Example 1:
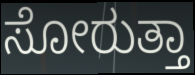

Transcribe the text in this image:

ಸೋರುತ್ತಾ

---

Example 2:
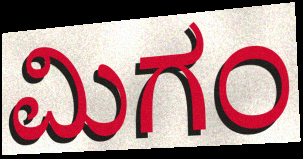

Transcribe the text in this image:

ಮಿಗಂ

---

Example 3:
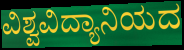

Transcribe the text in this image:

ವಿಶ್ವವಿದ್ಯಾನಿಯದ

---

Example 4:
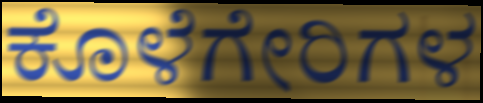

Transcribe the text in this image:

ಕೊಳೆಗೇರಿಗಳ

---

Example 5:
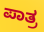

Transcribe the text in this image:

ಪಾತ್ರ